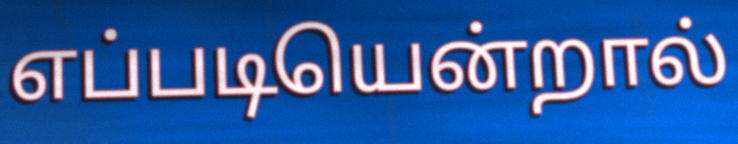
எப்படியென்றால்